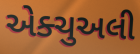
એક્ચુઅલી